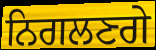
ਨਿਗਲਣਗੇ